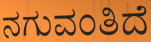
ನಗುವಂತಿದೆ